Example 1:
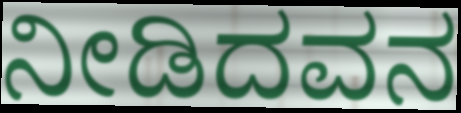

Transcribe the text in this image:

ನೀಡಿದವನ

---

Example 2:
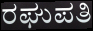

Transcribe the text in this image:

ರಘುಪತಿ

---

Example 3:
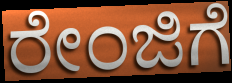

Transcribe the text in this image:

ರೇಂಜಿಗೆ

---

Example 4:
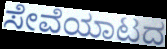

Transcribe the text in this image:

ಸೇವೆಯಾಟದ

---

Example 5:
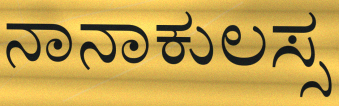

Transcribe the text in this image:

ನಾನಾಕುಲಸ್ಸ